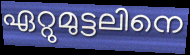
ഏറ്റുമുട്ടലിനെ